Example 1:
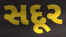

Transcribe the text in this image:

સદૂર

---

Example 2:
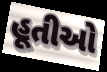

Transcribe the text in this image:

હૂતીઓ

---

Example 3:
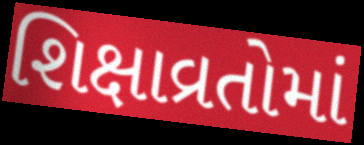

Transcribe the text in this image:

શિક્ષાવ્રતોમાં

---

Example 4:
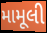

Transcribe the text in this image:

મામૂલી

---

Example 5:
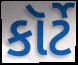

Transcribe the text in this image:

કૉર્ટે